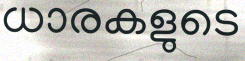
ധാരകളുടെ